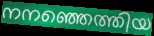
നനഞ്ഞെത്തിയ